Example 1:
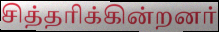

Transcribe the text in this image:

சித்தரிக்கின்றனர்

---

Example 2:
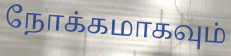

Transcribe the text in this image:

நோக்கமாகவும்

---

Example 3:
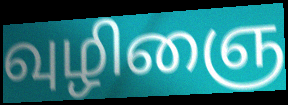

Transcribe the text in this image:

வுழிஞை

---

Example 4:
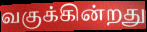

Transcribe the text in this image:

வகுக்கின்றது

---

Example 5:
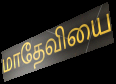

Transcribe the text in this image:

மாதேவியை